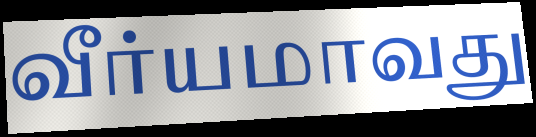
வீர்யமாவது